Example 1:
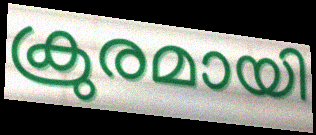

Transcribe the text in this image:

ക്രുരമായി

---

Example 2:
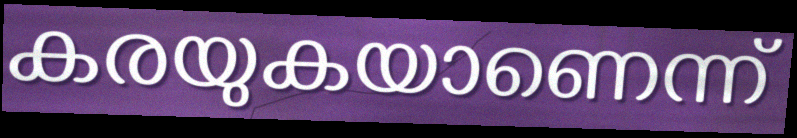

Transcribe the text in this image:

കരയുകയാണെന്ന്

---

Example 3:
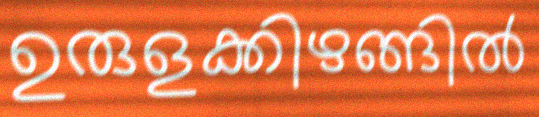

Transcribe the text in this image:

ഉരുളക്കിഴങ്ങിൽ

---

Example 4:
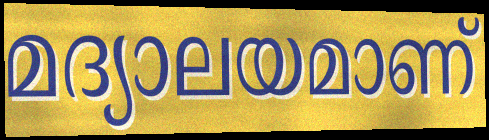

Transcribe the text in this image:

മദ്യാലയമാണ്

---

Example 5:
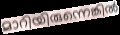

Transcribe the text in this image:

മാറിയിരുന്നെങ്കിൽ